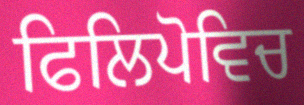
ਫਿਲਿਪੋਵਿਚ